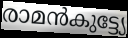
രാമൻകുട്ട്യേ